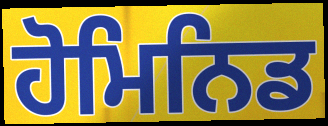
ਹੋਮਿਨਿਡ